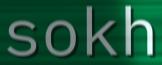
sokh